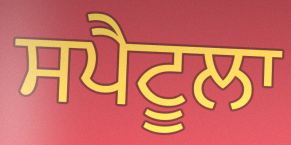
ਸਪੈਟੂਲਾ